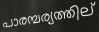
പാരമ്പര്യത്തില്